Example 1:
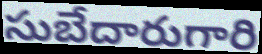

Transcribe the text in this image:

సుబేదారుగారి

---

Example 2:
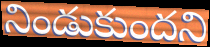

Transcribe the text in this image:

నిండుకుందని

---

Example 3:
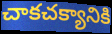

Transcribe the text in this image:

చాకచక్యానికి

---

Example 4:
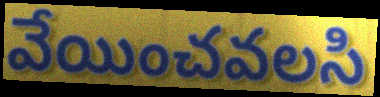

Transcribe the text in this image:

వేయించవలసి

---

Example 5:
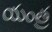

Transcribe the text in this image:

యంత్ర